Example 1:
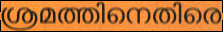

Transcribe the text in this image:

ശ്രമത്തിനെതിരെ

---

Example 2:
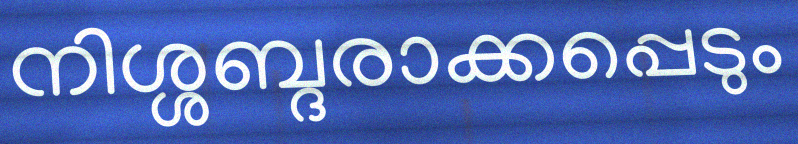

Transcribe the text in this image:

നിശ്ശബ്ദരാക്കപ്പെടും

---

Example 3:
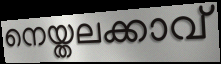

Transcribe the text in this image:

നെയ്തലക്കാവ്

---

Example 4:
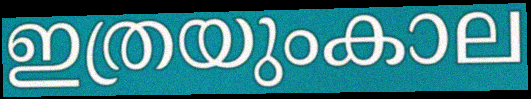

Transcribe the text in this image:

ഇത്രയുംകാല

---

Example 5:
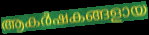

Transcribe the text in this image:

ആകർഷകങ്ങളായ